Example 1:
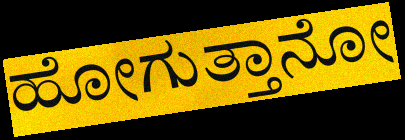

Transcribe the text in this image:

ಹೋಗುತ್ತಾನೋ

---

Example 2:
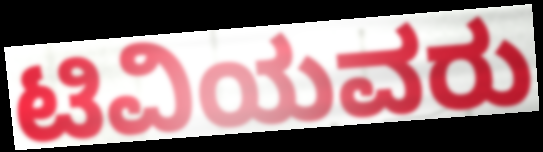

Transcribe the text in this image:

ಟಿವಿಯವರು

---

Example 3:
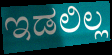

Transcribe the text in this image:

ಇಡಲಿಲ್ಲ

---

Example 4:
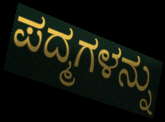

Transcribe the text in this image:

ಪದ್ಮಗಳನ್ನು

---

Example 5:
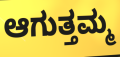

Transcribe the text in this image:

ಆಗುತ್ತಮ್ಮ